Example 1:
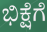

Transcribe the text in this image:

ಭಿಕ್ಷೆಗೆ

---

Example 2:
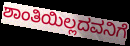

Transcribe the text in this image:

ಶಾಂತಿಯಿಲ್ಲದವನಿಗೆ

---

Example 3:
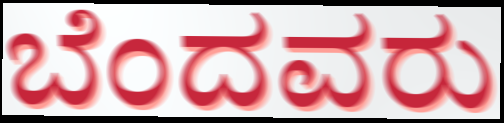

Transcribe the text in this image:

ಬೆಂದವರು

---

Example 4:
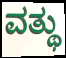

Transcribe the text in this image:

ವತ್ಥು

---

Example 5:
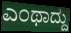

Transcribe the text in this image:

ಎಂಥಾದ್ದು